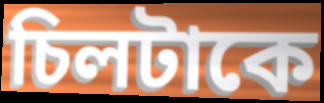
চিলটাকে